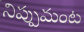
నిప్పుమంట